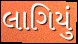
લાગિયું